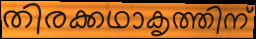
തിരക്കഥാകൃത്തിന്